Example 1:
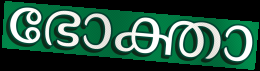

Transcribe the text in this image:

ഭോക്താ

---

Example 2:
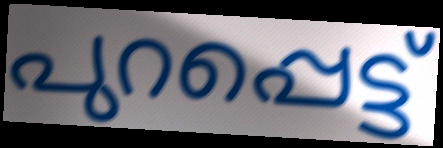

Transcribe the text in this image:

പുറപ്പെട്ട്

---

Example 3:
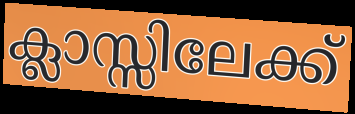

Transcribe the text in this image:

ക്ലാസ്സിലേക്ക്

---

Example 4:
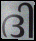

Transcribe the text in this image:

ദി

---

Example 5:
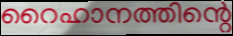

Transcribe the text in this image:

റൈഹാനത്തിന്റെ